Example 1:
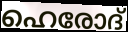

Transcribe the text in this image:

ഹെരോദ്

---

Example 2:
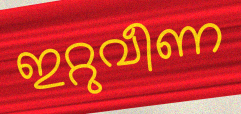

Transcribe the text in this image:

ഇറ്റുവീണ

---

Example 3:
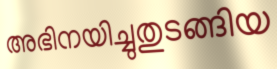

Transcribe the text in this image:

അഭിനയിച്ചുതുടങ്ങിയ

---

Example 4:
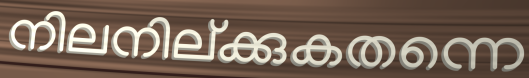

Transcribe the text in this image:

നിലനില്ക്കുകതന്നെ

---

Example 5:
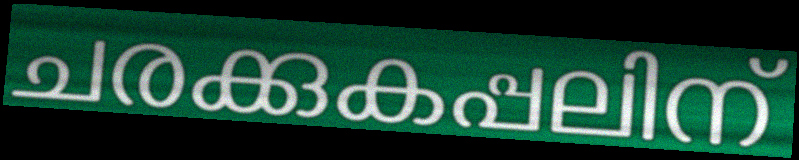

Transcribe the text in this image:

ചരക്കുകപ്പലിന്